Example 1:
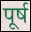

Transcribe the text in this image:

पूर्ष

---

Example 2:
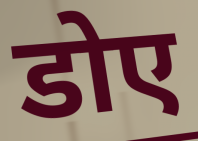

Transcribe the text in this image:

डोए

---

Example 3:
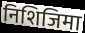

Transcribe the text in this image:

निशिजिमा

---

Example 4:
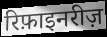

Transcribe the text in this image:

रिफ़ाइनरीज़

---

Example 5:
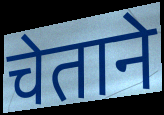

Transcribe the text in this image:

चेताने